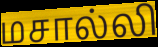
மசால்லி